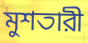
মুশতারী